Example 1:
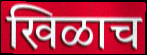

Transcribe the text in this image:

खिळाच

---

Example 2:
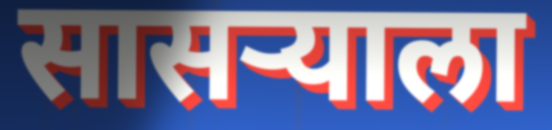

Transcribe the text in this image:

सासर्‍याला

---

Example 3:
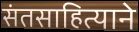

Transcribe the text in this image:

संतसाहित्याने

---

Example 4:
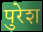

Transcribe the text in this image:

पुरेश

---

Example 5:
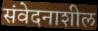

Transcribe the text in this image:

संवेदनाशील